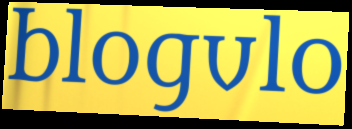
blogulo